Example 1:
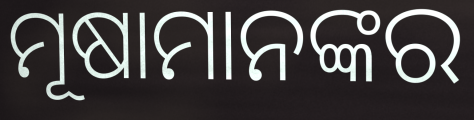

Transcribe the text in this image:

ମୂଷାମାନଙ୍କର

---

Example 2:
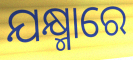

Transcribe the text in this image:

ଯକ୍ଷ୍ମାରେ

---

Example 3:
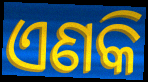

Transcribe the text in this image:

ଏଣକି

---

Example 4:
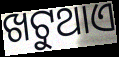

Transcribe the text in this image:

ଖଟୁଥାଏ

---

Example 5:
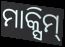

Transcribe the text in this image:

ମାକ୍ସିମ୍